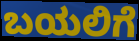
ಬಯಲಿಗೆ